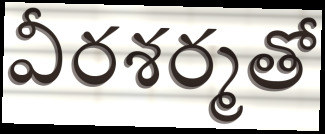
వీరశర్మతో